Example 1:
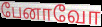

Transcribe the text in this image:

பேனாவோ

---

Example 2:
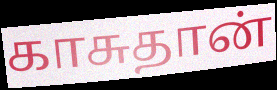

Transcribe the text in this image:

காசுதான்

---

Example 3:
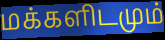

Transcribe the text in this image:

மக்களிடமும்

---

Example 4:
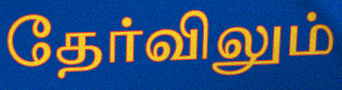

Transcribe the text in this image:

தேர்விலும்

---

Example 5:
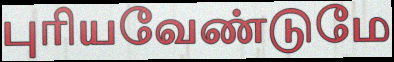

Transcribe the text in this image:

புரியவேண்டுமே